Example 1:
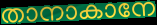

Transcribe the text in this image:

താനാകാനേ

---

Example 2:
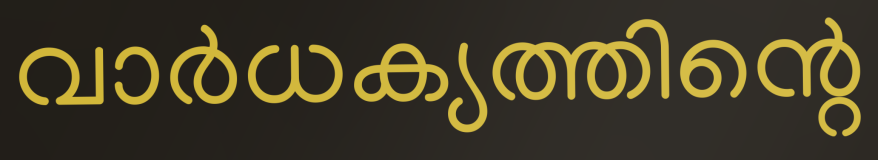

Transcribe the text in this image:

വാർധക്യത്തിന്റെ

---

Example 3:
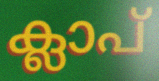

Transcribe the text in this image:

ക്ലാപ്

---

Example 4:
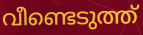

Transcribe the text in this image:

വീണ്ടെടുത്ത്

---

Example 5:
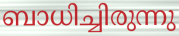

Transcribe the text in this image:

ബാധിച്ചിരുന്നു